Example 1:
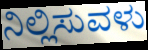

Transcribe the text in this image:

ನಿಲ್ಲಿಸುವಳು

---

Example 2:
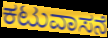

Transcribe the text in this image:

ಕಟುವಾಸನೆ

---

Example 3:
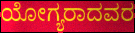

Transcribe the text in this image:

ಯೋಗ್ಯರಾದವರ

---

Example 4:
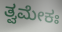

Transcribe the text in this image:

ತ್ವಮೇಕಃ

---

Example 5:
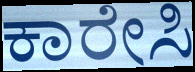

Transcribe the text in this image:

ಕಾರೇಸಿ